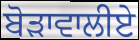
ਬੋੜਾਵਾਲੀਏ